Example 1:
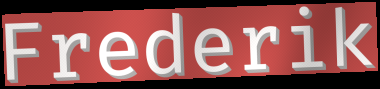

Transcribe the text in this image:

Frederik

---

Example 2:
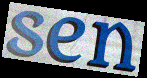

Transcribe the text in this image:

sen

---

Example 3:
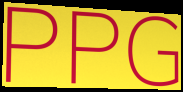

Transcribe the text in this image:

PPG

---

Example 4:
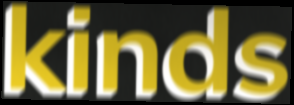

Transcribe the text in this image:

kinds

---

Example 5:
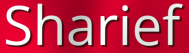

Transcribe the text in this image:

Sharief